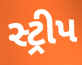
સ્ટ્રીપ